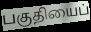
பகுதியைப்